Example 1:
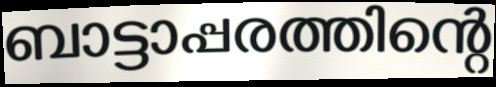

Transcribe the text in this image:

ബാട്ടാപ്പരത്തിന്റെ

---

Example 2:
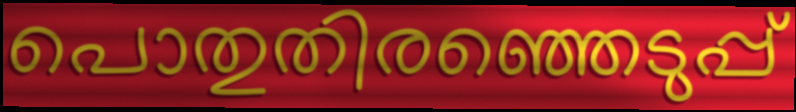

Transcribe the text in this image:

പൊതുതിരഞ്ഞെടുപ്പ്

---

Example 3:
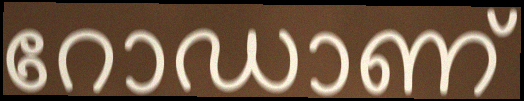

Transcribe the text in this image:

റോഡാണ്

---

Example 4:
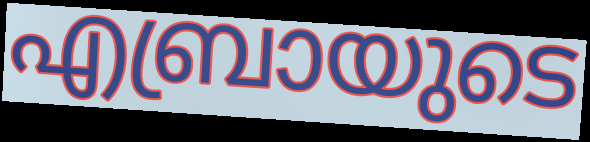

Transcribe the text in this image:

എബ്രായുടെ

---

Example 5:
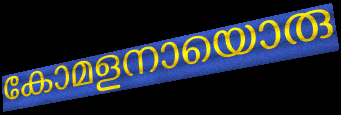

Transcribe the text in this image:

കോമളനായൊരു